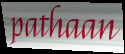
pathaan